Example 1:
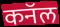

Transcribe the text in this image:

कनॅल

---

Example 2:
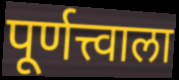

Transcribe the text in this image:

पूर्णत्त्वाला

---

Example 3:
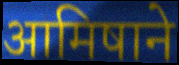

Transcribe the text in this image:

आमिषाने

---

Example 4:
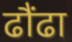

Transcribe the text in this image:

ढौंढा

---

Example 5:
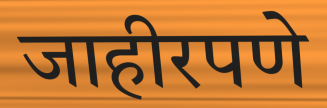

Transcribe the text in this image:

जाहीरपणे